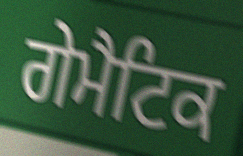
ਗੇਮੈਟਿਕ